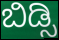
ಬಿಡ್ಸಿ